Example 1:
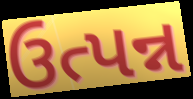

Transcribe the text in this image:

ઉત્પન્ન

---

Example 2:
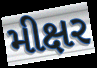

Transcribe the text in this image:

મીક્ષર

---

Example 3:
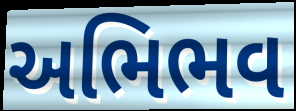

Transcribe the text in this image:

અભિભવ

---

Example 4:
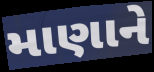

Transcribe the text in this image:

માણાને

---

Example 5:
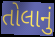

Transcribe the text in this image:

તોલાનું